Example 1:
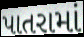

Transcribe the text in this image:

પાતરામાં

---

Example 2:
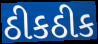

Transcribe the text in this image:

ઠીકઠીક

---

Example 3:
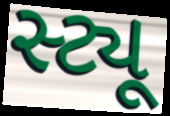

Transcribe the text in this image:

સ્ટ્યૂ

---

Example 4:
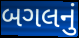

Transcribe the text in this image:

બગલનું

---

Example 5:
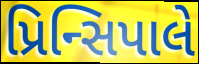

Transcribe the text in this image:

પ્રિન્સિપાલે